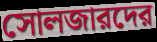
সোলজারদের